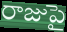
రాజుపై